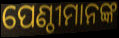
ପେଣ୍ଠୀମାନଙ୍କ